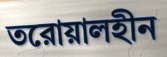
তরোয়ালহীন